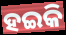
ହଇକି